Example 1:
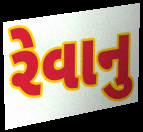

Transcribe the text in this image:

રેવાનુ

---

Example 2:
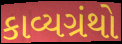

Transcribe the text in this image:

કાવ્યગ્રંથો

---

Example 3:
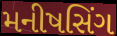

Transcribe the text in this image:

મનીષસિંગ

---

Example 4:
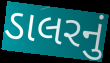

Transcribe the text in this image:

ડાલરનું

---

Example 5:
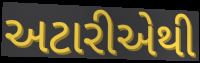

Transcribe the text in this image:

અટારીએથી